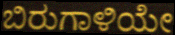
ಬಿರುಗಾಳಿಯೇ